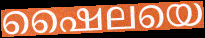
ഷൈലയെ